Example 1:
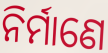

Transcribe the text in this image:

ନିର୍ମାଣେ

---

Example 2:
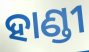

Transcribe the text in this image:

ହାଣ୍ଡୀ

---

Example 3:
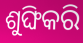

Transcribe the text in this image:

ଶୁଙ୍ଘିକରି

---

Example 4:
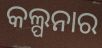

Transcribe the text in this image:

କଲ୍ପନାର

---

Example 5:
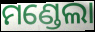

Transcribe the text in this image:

ମଣ୍ଡେଲା